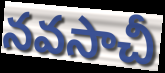
నవసాచీ